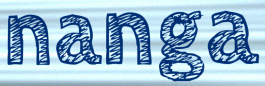
nanga